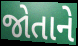
જોતાને